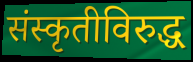
संस्कृतीविरुद्ध